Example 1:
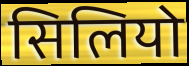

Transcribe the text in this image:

सिलियो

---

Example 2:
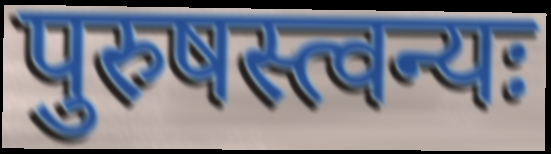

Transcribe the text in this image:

पुरुषस्त्वन्यः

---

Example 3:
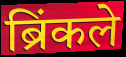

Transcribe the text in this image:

ब्रिंकले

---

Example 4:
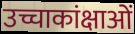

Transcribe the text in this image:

उच्चाकांक्षाओं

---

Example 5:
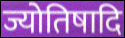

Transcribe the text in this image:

ज्योतिषादि